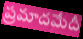
ప్రమాదమేదీ